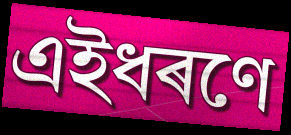
এইধৰণে